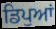
ਡਿਪੁਆਂ